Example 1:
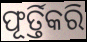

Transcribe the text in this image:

ଫୂର୍ତ୍ତିକରି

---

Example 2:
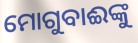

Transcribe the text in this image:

ମୋଗୁବାଈଙ୍କୁ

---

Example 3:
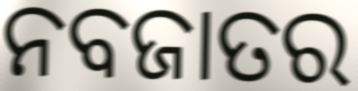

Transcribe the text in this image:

ନବଜାତର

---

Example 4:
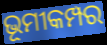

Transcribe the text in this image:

ଭୂମୀକମ୍ପର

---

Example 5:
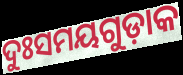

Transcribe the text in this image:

ଦୁଃସମୟଗୁଡ଼ାକ